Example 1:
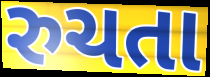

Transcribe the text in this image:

રુચતા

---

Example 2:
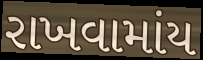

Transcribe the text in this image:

રાખવામાંય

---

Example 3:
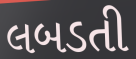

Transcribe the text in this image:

લબડતી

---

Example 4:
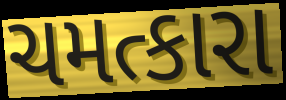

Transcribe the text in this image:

ચમત્કારા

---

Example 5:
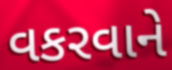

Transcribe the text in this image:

વકરવાને